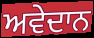
ਅਵੇਦਾਨ